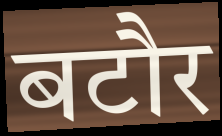
बटौर